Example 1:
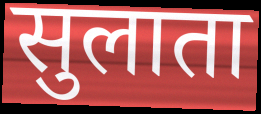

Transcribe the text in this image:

सुलाता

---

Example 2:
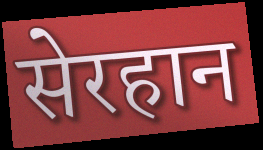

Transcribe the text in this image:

सेरहान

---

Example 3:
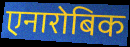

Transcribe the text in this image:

एनारोबिक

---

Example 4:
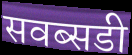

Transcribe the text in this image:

सवब्सडी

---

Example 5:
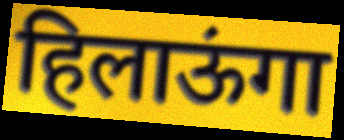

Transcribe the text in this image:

हिलाऊंगा